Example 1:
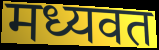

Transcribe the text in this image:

मध्यवत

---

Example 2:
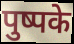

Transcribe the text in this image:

पुष्पके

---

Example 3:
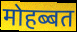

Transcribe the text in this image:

मोहब्बत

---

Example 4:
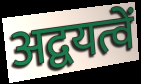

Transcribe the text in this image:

अद्वयत्वें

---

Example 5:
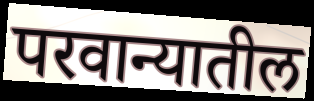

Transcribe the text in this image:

परवान्यातील